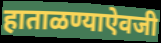
हाताळण्याऐवजी